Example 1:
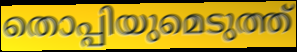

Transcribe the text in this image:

തൊപ്പിയുമെടുത്ത്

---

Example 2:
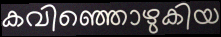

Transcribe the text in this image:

കവിഞ്ഞൊഴുകിയ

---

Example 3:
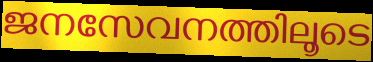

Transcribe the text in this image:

ജനസേവനത്തിലൂടെ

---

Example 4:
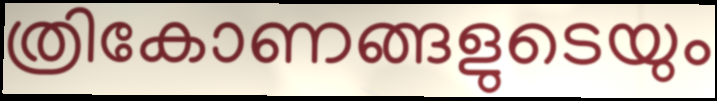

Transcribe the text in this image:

ത്രികോണങ്ങളുടെയും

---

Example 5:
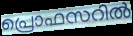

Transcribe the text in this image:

പ്രൊഫസറിൽ